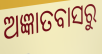
ଅଜ୍ଞାତବାସରୁ